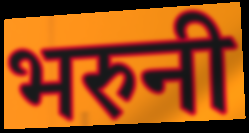
भरुनी